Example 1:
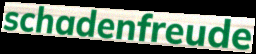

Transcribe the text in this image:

schadenfreude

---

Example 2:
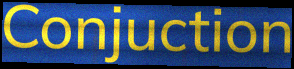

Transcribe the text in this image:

Conjuction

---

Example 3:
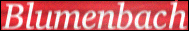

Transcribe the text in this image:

Blumenbach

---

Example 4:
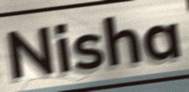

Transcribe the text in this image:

Nisha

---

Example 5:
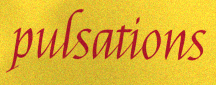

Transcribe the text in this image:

pulsations